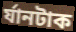
র্যানটাক